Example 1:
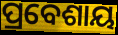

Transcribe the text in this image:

ପ୍ରବେଶାୟ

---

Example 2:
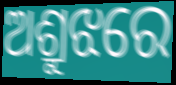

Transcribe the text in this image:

ଅଶ୍ରୁଝରେ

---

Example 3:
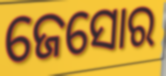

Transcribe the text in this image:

ଜେସୋର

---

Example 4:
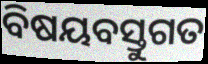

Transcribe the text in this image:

ବିଷୟବସ୍ତୁଗତ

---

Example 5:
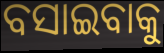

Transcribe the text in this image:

ବସାଇବାକୁ